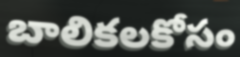
బాలికలకోసం